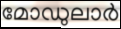
മോഡുലാർ